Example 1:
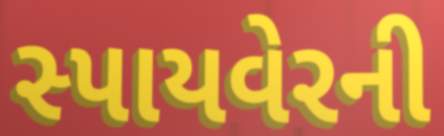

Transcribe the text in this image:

સ્પાયવેરની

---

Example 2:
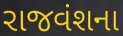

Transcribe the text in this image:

રાજવંશના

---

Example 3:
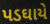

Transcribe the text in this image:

પડઘાયે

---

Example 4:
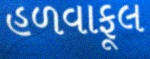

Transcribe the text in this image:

હળવાફૂલ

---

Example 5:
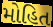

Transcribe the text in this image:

મોહિત